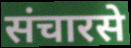
संचारसे